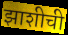
झाशीची